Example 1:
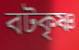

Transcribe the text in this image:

বটকৃষ্ণ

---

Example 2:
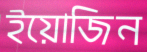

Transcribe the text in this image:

ইয়োজিন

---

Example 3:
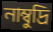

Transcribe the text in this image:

নাম্বুদ্রি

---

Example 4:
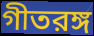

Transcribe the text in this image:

গীতরঙ্গ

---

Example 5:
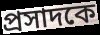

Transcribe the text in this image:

প্রসাদকে